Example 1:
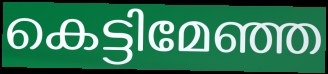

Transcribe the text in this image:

കെട്ടിമേഞ്ഞ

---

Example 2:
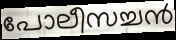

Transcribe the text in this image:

പോലീസച്ചൻ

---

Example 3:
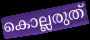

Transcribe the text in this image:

കൊല്ലരുത്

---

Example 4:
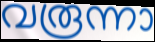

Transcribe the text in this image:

വരൂന്നാ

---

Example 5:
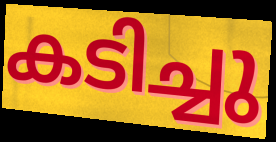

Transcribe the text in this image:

കടിച്ചു